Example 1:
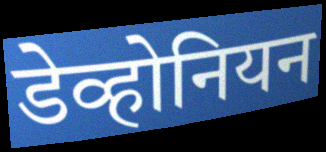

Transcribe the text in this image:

डेव्होनियन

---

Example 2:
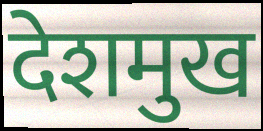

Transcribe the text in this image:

देशमुख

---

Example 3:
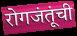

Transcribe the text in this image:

रोगजंतूंची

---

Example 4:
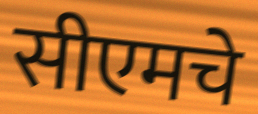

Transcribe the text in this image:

सीएमचे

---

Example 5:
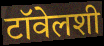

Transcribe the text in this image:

टॉवेलशी